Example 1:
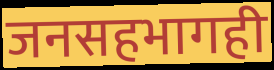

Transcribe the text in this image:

जनसहभागही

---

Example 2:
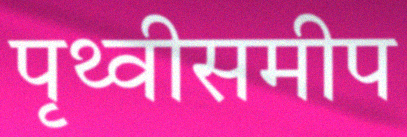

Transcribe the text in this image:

पृथ्वीसमीप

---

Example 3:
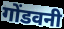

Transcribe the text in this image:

गोंडवनी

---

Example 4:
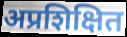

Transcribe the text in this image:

अप्रशिक्षित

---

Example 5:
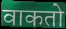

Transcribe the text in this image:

वाकतो